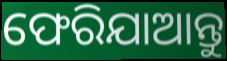
ଫେରିଯାଆନ୍ତୁ